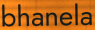
bhanela